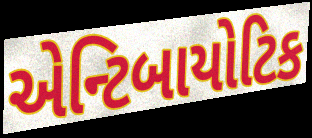
એન્ટિબાયોટિક